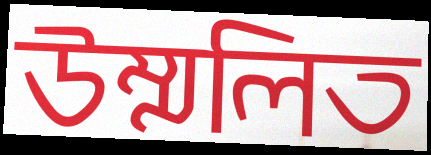
উম্মলিত